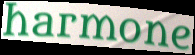
harmone